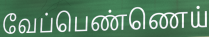
வேப்பெண்ணெய்